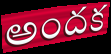
అందక